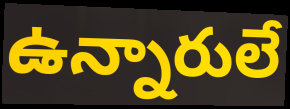
ఉన్నారులే